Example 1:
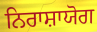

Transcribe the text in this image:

ਨਿਰਾਸ਼ਾਯੋਗ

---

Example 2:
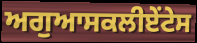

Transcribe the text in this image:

ਅਗੁਆਸਕਲੀਏਂਟੇਸ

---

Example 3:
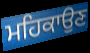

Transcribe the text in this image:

ਮਹਿਕਾਉਣ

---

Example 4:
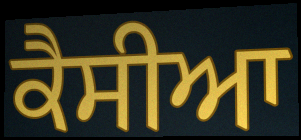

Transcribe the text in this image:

ਕੈਸੀਆ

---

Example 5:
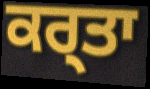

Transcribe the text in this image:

ਕਰ੍ਤਾ